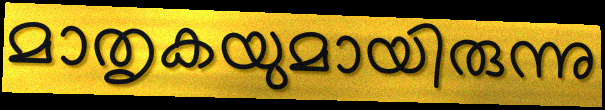
മാതൃകയുമായിരുന്നു